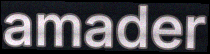
amader